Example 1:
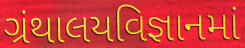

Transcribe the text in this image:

ગ્રંથાલયવિજ્ઞાનમાં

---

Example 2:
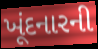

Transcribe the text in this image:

ખૂંદનારની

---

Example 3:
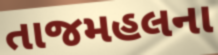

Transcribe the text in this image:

તાજમહલના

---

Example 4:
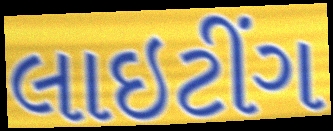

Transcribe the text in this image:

લાઇટીંગ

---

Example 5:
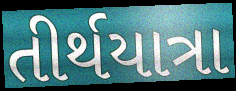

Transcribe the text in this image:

તીર્થયાત્રા